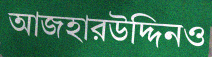
আজহারউদ্দিনও